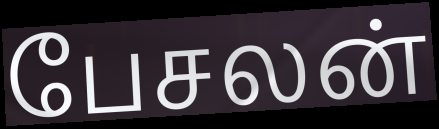
பேசலன்